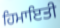
ਹਿਮਾਇਤੀ